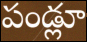
పండ్లూ